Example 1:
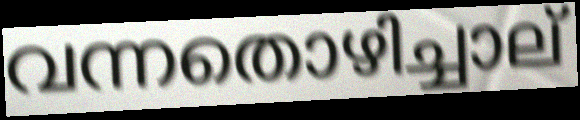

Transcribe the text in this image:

വന്നതൊഴിച്ചാല്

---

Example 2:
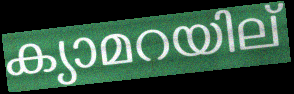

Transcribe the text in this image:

ക്യാമറയില്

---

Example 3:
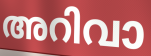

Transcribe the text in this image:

അറിവാ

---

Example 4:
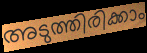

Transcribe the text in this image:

അടുത്തിരിക്കാം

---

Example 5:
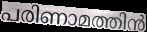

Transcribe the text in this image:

പരിണാമത്തിൻ